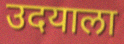
उदयाला